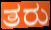
ತರು